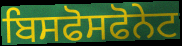
ਬਿਸਫੋਸਫੋਨੇਟ